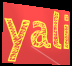
yali